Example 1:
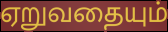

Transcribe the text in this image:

ஏறுவதையும்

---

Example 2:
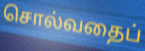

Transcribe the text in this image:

சொல்வதைப்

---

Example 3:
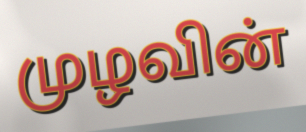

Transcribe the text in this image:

முழவின்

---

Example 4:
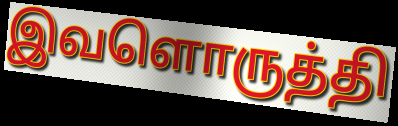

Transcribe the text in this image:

இவளொருத்தி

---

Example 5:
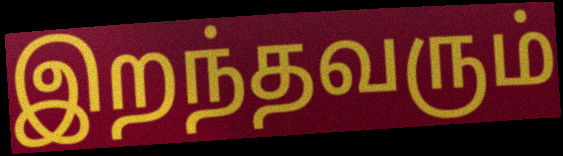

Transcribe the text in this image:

இறந்தவரும்